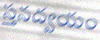
స్తనద్వయం